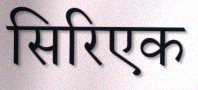
सिरिएक